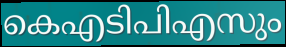
കെഎടിപിഎസും